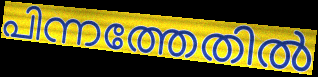
പിന്നത്തേതിൽ